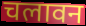
चलावन